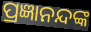
ପ୍ରଜ୍ଞାନନ୍ଦଙ୍କ